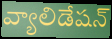
వ్యాలిడేషన్